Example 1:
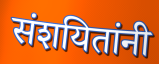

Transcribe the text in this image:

संशयितांनी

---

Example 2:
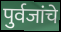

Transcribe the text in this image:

पुर्वजांचे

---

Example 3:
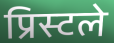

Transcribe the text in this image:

प्रिस्टले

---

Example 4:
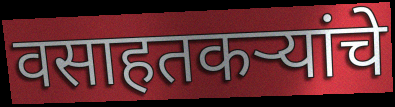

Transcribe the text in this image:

वसाहतकऱ्यांचे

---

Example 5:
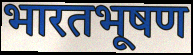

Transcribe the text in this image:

भारतभूषण